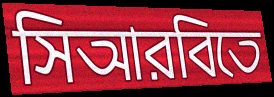
সিআরবিতে